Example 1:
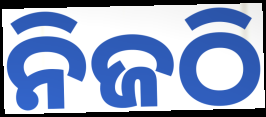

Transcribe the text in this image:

ନିଜଠି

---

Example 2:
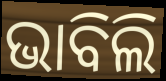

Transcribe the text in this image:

ଭାବିଲି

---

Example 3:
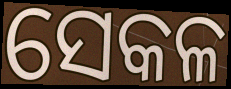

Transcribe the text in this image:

ସେକଳ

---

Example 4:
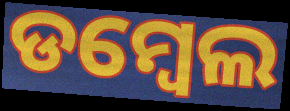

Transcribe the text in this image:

ଡମ୍ୱେଲ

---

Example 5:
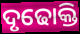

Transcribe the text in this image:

ଦୃଢୋକ୍ତି